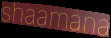
shaamana